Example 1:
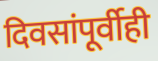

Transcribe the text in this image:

दिवसांपूर्वीही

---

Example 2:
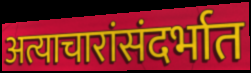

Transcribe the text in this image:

अत्याचारांसंदर्भात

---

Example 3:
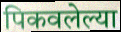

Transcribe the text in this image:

पिकवलेल्या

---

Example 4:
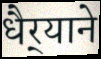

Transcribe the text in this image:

धैर्याने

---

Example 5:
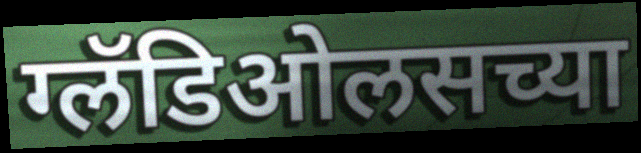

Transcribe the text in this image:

ग्लॅडिओलसच्या